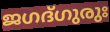
ജഗദ്ഗുരുഃ